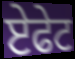
ਏਫੇਟ